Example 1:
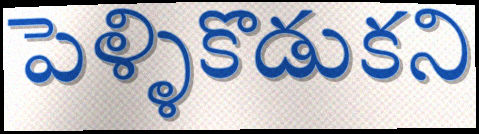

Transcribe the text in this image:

పెళ్ళికొడుకని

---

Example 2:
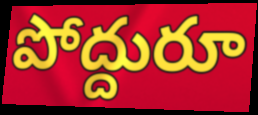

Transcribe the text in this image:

పోద్దురూ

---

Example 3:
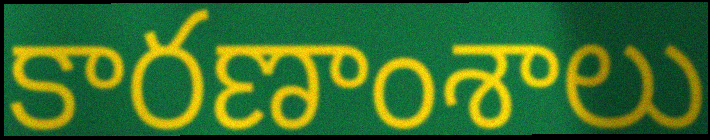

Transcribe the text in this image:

కారణాంశాలు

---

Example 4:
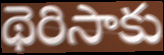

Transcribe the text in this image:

థెరిసాకు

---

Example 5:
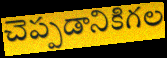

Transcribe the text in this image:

చెప్పడానికిగల